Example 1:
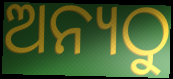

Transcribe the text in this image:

ଅନ୍ୟଠୁ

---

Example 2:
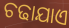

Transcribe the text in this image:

ଚଢାଯାଏ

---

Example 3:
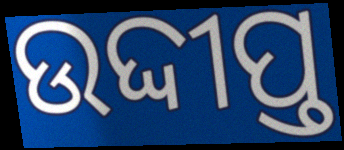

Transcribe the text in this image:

ଉଦ୍ଦୀପ୍ତ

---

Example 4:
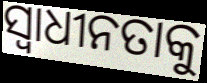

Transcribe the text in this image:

ସ୍ୱାଧୀନତାକୁ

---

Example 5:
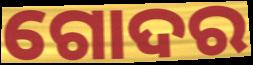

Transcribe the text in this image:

ଗୋଦର